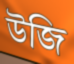
উজি